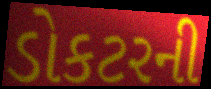
ડોકટરની